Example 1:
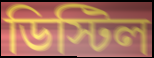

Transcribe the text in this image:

ডিস্টিল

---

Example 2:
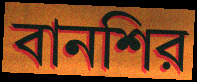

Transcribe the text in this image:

বানশির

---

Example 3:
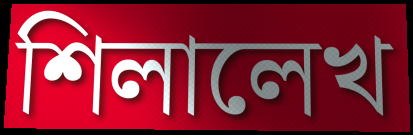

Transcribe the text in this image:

শিলালেখ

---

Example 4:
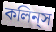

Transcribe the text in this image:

কলিন্‌স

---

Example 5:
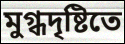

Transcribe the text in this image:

মুগ্ধদৃষ্টিতে